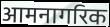
आमनागरिक